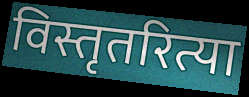
विस्तृतरित्या